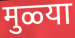
मुळ्या